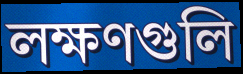
লক্ষণগুলি